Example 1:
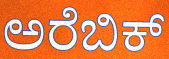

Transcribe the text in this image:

ಅರೆಬಿಕ್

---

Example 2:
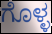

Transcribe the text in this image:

ಗೊಳ್ಳ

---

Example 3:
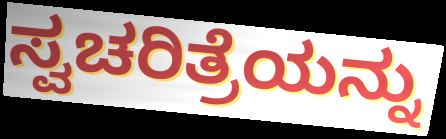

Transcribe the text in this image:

ಸ್ವಚರಿತ್ರೆಯನ್ನು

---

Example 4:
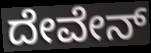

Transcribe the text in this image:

ದೇವೇನ್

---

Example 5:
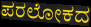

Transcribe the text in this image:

ಪರಲೋಕದ